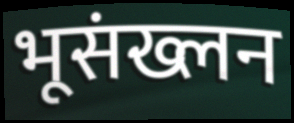
भूसंख्लन